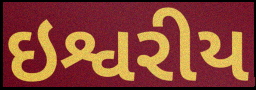
ઇશ્વરીય